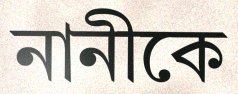
নানীকে